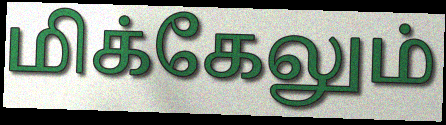
மிக்கேலும்